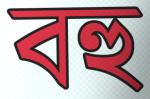
বহু